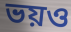
ভয়ও